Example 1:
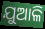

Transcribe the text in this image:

ଯୁଆଳି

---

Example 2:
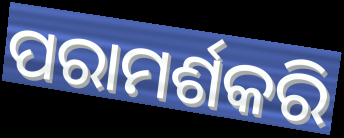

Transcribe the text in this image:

ପରାମର୍ଶକରି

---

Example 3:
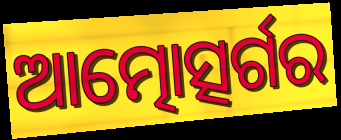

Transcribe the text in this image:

ଆତ୍ମୋତ୍ସର୍ଗର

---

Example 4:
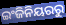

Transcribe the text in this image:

ଇଂଜିନିୟରରୁ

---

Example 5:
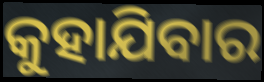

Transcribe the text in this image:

କୁହାଯିବାର